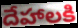
దేహాలకి